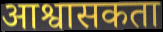
आश्वासकता